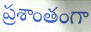
ప్రశాంతంగా